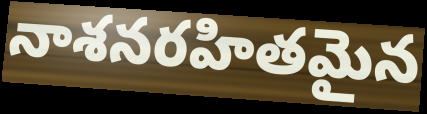
నాశనరహితమైన